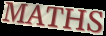
MATHS